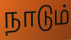
நாடும்